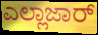
ಎಲ್ಲಾಜಾರ್